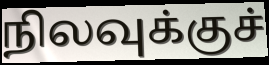
நிலவுக்குச்